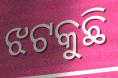
ଝଟକୁଛି